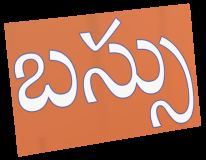
బస్సు